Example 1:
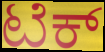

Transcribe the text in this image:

ಟೆಕ್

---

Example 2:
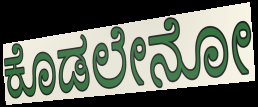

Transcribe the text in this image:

ಕೊಡಲೇನೋ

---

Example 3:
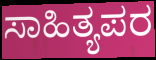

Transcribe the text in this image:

ಸಾಹಿತ್ಯಪರ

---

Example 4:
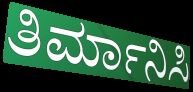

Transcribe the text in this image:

ತಿರ್ಮಾನಿಸಿ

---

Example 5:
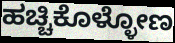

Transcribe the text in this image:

ಹಚ್ಚಿಕೊಳ್ಳೋಣ